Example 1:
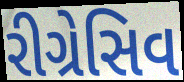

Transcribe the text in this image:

રીગ્રેસિવ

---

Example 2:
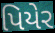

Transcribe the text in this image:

પિયેર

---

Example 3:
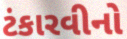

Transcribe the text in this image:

ટંકારવીનો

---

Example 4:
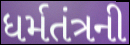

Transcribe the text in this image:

ધર્મતંત્રની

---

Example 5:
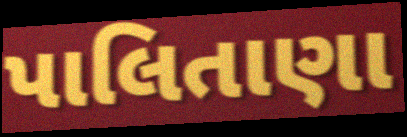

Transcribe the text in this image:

પાલિતાણા